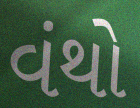
વંથો